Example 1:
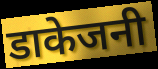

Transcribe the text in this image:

डाकेजनी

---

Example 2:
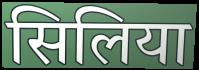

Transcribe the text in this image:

सिलिया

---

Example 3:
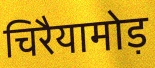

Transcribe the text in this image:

चिरैयामोड़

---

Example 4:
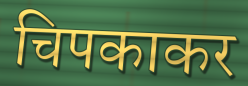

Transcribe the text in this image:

चिपकाकर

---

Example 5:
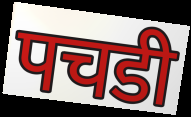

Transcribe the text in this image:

पचडी